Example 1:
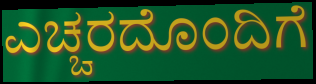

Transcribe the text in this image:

ಎಚ್ಚರದೊಂದಿಗೆ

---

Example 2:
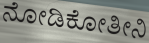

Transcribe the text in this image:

ನೋಡಿಕೋತೀನಿ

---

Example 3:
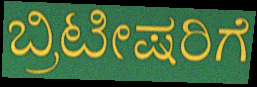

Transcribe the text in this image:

ಬ್ರಿಟೀಷರಿಗೆ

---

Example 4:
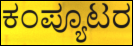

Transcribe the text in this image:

ಕಂಪ್ಯೂಟರ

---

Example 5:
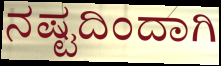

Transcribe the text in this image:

ನಷ್ಟದಿಂದಾಗಿ